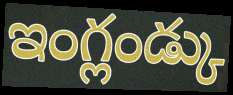
ఇంగ్లండ్కు